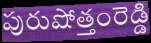
పురుషోత్తంరెడ్డి